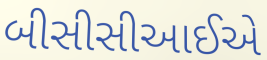
બીસીસીઆઈએ